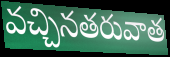
వచ్చినతరువాత